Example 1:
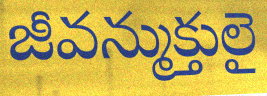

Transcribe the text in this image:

జీవన్ముక్తులై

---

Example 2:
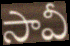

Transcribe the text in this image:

సావీ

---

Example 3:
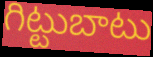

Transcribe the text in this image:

గిట్టుబాటు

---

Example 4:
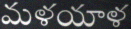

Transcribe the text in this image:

మళయాళ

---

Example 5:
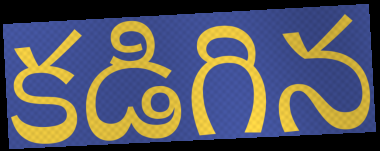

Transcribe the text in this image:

కడిగిన